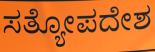
ಸತ್ಯೋಪದೇಶ